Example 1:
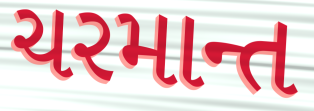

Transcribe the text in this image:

ચરમાન્ત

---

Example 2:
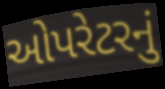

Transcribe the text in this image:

ઓપરેટરનું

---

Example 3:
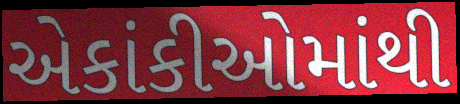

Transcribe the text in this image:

એકાંકીઓમાંથી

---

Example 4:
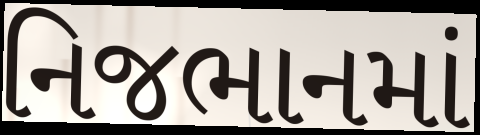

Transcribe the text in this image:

નિજભાનમાં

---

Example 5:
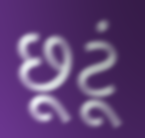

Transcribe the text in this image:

છૂટૂં